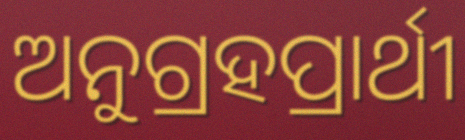
ଅନୁଗ୍ରହପ୍ରାର୍ଥୀ